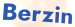
Berzin